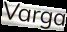
Varga